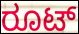
ರೂಟ್